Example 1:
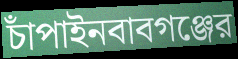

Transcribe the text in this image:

চাঁপাইনবাবগঞ্জের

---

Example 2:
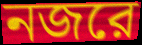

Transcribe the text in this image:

নজরে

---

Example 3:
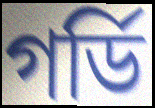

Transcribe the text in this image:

গর্ডি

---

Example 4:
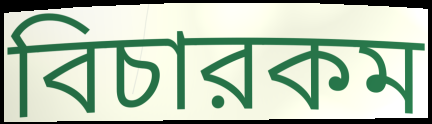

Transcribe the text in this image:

বিচারকম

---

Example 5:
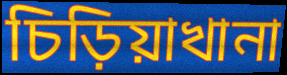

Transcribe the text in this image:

চিড়িয়াখানা